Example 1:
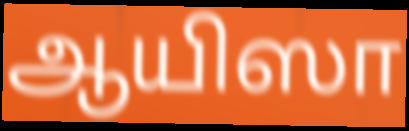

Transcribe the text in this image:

ஆயிஸா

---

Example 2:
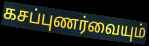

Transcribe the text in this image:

கசப்புணர்வையும்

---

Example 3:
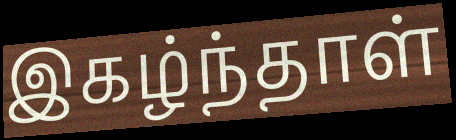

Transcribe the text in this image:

இகழ்ந்தாள்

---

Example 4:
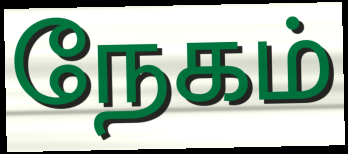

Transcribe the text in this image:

நேகம்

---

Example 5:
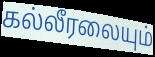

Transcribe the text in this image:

கல்லீரலையும்